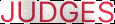
JUDGES